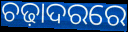
ଚଢ଼ାଦରରେ